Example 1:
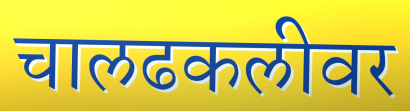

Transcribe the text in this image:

चालढकलीवर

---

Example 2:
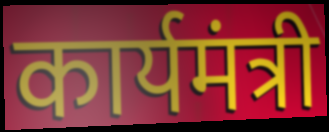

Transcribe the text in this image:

कार्यमंत्री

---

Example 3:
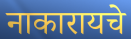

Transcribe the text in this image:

नाकारायचे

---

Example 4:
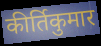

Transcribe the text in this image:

कीर्तिकुमार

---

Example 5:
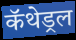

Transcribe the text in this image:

कॅथेड्रल